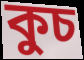
কুচ